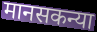
मानसकन्या